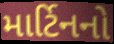
માર્ટિનનો